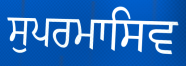
ਸੁਪਰਮਾਸਿਵ